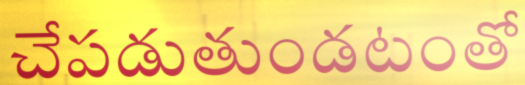
చేపడుతుండటంతో